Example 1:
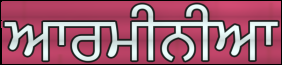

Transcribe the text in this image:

ਆਰਮੀਨੀਆ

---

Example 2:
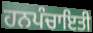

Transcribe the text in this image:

ਹਨਪੰਚਾਇਤੀ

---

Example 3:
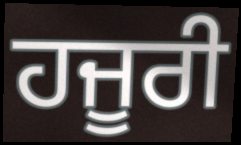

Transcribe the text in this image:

ਹਜੂਰੀ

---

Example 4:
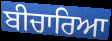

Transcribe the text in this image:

ਬੀਚਾਰਿਆ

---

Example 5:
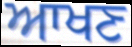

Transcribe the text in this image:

ਆਖਣ